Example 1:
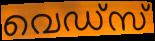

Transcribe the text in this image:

വെഡ്സ്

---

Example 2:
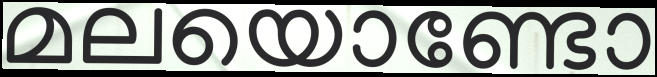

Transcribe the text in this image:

മലയൊണ്ടോ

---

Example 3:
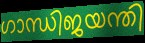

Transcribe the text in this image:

ഗാന്ധിജയന്തി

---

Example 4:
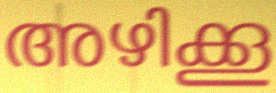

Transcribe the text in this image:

അഴിക്കൂ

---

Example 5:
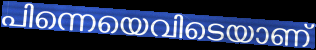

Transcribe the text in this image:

പിന്നെയെവിടെയാണ്